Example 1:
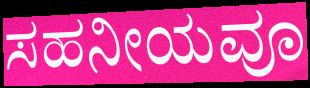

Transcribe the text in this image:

ಸಹನೀಯವೂ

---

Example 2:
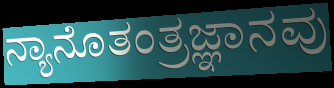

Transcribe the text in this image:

ನ್ಯಾನೊತಂತ್ರಜ್ಞಾನವು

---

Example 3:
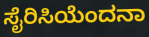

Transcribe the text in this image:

ಸೈರಿಸಿಯೆಂದನಾ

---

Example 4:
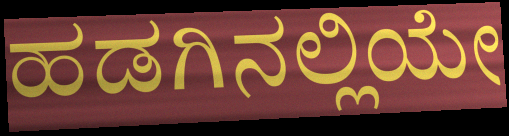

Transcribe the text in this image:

ಹಡಗಿನಲ್ಲಿಯೇ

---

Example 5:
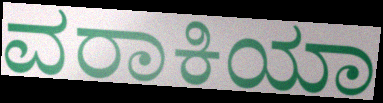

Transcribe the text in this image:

ವರಾಕಿಯಾ